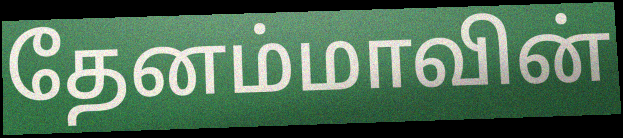
தேனம்மாவின்